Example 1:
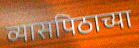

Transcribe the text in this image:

व्यासपिठाच्या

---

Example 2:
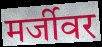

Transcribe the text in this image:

मर्जीवर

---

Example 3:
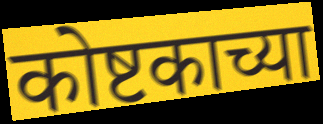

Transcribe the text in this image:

कोष्टकाच्या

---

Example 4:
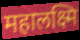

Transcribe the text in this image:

महालक्ष्मि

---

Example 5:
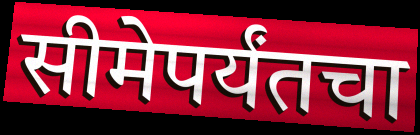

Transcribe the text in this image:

सीमेपर्यंतचा